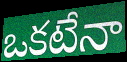
ఒకటేనా